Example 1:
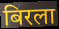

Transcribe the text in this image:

बिरला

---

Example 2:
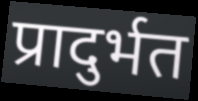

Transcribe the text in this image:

प्रादुर्भत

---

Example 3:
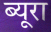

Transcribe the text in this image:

ब्यूरा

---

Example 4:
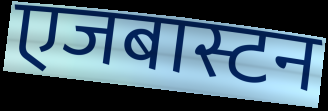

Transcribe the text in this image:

एजबास्टन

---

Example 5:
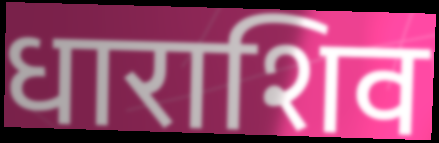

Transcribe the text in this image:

धाराशिव